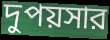
দুপয়সার